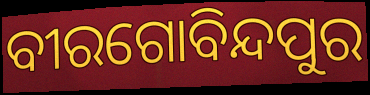
ବୀରଗୋବିନ୍ଦପୁର